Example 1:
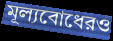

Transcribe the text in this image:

মূল্যবোধেরও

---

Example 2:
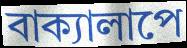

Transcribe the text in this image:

বাক্যালাপে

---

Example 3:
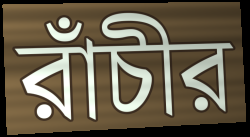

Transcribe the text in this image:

রাঁচীর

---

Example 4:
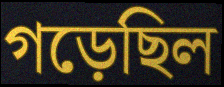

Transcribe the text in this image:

গড়েছিল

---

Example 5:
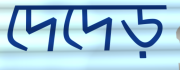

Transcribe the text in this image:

দেদেড়